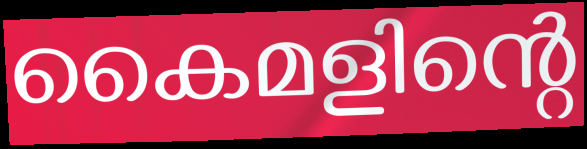
കൈമളിന്റെ